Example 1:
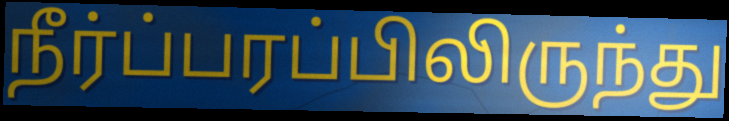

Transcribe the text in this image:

நீர்ப்பரப்பிலிருந்து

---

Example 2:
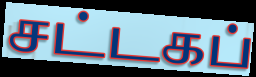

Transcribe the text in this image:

சட்டகப்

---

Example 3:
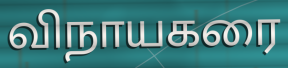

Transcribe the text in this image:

விநாயகரை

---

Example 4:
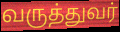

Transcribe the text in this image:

வருத்துவர்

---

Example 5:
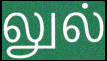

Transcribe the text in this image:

லுல்